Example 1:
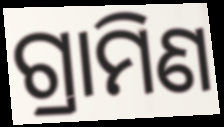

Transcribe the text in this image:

ଗ୍ରାମିଣ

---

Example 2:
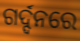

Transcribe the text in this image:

ଗର୍ଦ୍ଦନରେ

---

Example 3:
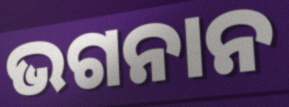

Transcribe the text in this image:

ଭଗନାନ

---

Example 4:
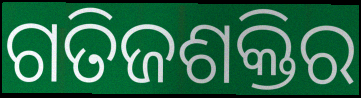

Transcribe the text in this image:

ଗତିଜଶକ୍ତିର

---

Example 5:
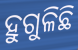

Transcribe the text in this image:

ହୁଗୁଳିଛି